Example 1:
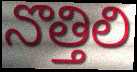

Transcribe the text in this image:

నొత్తిలి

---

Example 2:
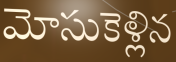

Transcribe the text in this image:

మోసుకెళ్లిన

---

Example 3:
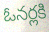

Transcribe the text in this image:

ఓనర్లకి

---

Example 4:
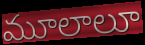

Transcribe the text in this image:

మూలాలూ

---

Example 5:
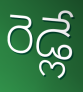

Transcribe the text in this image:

రెడ్లే